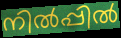
നിൽപ്പിൽ